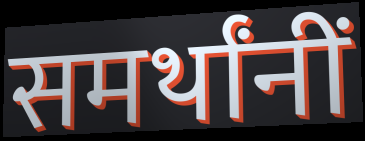
समर्थांनीं